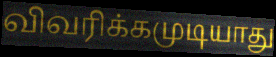
விவரிக்கமுடியாது